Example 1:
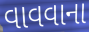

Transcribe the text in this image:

વાવવાના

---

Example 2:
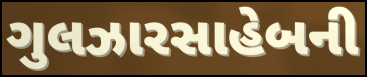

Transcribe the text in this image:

ગુલઝારસાહેબની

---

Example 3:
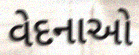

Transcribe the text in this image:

વેદનાઓ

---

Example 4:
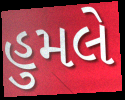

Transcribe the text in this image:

હુમલે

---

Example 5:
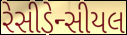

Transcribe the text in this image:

રેસીડેન્સીયલ